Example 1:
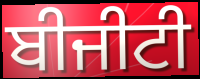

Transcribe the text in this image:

ਬੀਜੀਟੀ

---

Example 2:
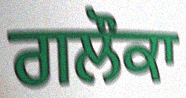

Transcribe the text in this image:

ਗਲੌਕਾ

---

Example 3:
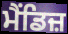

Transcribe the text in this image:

ਮੈਂਡਿਜ਼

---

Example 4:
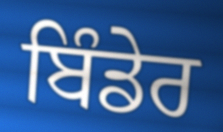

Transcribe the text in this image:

ਬਿੰਡੇਰ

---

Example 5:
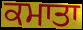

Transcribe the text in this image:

ਕਮਾਤਾ